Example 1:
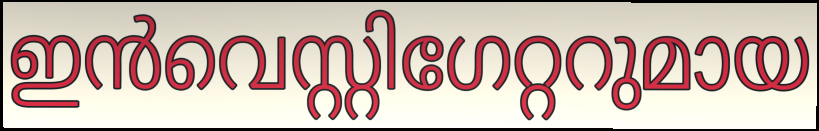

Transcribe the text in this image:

ഇൻവെസ്റ്റിഗേറ്ററുമായ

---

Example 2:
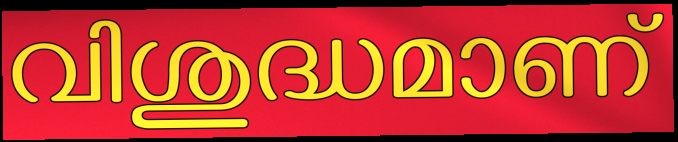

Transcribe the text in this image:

വിശുദ്ധമാണ്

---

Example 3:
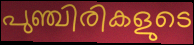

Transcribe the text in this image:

പുഞ്ചിരികളുടെ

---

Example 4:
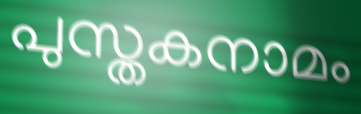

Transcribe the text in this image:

പുസ്തകനാമം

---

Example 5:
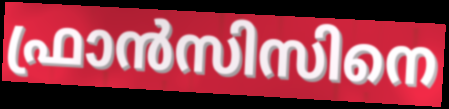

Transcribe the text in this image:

ഫ്രാൻസിസിനെ